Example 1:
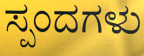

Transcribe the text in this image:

ಸ್ಪಂದಗಳು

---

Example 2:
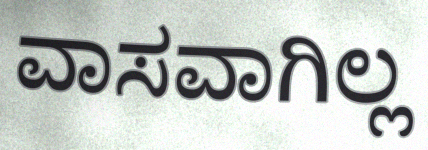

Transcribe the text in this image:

ವಾಸವಾಗಿಲ್ಲ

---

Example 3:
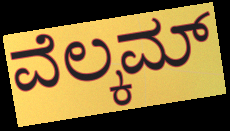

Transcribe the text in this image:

ವೆಲ್ಕಮ್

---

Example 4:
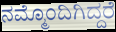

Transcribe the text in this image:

ನಮ್ಮೊಂದಿಗಿದ್ದರೆ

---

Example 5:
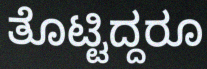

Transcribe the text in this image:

ತೊಟ್ಟಿದ್ದರೂ